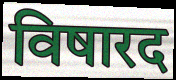
विषारद